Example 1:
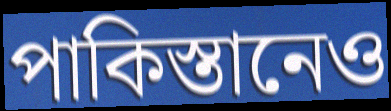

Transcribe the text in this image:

পাকিস্তানেও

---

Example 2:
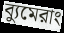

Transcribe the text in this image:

ব্যুমেরাং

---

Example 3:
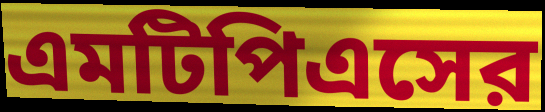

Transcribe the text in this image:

এমটিপিএসের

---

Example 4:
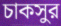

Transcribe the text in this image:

চাকসুর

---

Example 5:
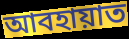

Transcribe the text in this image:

আবহায়াত